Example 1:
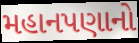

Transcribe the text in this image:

મહાનપણાનો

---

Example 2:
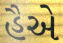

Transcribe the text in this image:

હૈએ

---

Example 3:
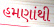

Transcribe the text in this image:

હમણાંથી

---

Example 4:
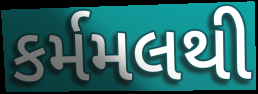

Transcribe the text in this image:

કર્મમલથી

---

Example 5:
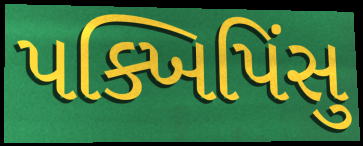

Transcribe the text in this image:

પક્ખિપિંસુ